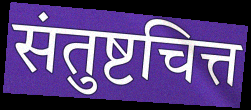
संतुष्टचित्त